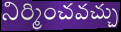
నిర్మించవచ్చు